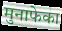
मुनाफेका